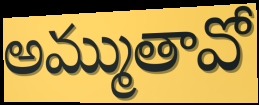
అమ్ముతావో